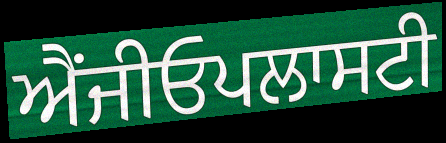
ਐਂਜੀਓਪਲਾਸਟੀ